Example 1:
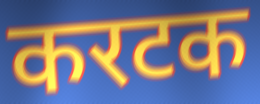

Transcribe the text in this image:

करटक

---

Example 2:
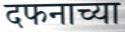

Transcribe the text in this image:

दफनाच्या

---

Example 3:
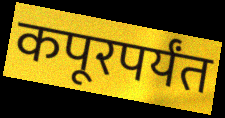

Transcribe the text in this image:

कपूरपर्यंत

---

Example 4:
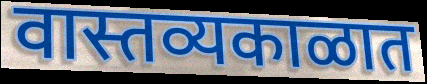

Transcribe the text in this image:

वास्तव्यकाळात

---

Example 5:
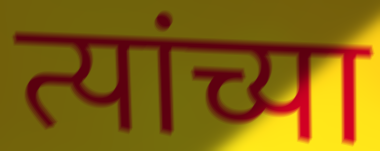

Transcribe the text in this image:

त्यांच्या